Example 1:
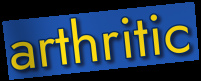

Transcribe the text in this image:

arthritic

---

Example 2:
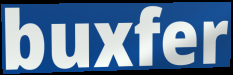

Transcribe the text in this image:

buxfer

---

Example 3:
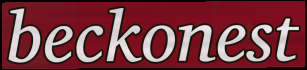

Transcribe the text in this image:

beckonest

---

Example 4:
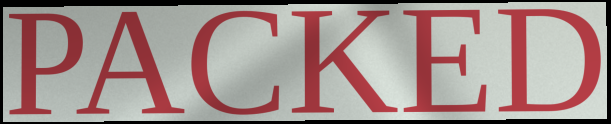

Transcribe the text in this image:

PACKED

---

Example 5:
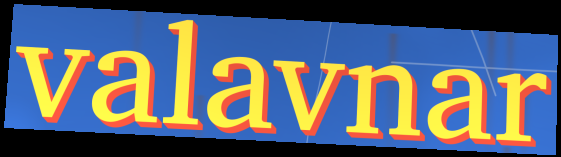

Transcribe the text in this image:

valavnar